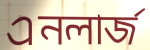
এনলার্জ